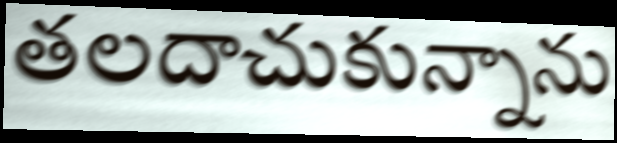
తలదాచుకున్నాను